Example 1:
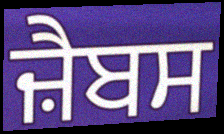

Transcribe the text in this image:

ਜ਼ੈਬਸ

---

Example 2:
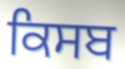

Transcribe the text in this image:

ਕਿਸਬ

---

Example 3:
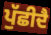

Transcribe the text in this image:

ਪੁੱਛੀਦੈ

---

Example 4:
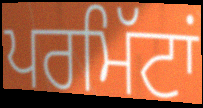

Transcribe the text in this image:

ਪਰਮਿੱਟਾਂ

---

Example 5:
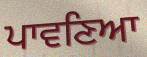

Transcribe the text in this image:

ਪਾਵਣਿਆ